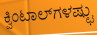
ಕ್ವಿಂಟಾಲ್‌ಗಳಷ್ಟು